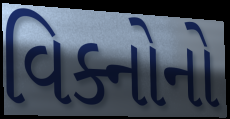
વિક્નોનો